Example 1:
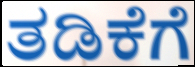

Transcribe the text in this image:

ತಡಿಕೆಗೆ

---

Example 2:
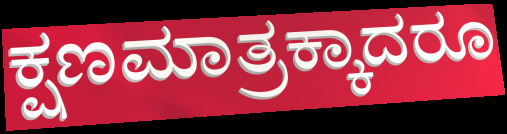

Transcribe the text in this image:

ಕ್ಷಣಮಾತ್ರಕ್ಕಾದರೂ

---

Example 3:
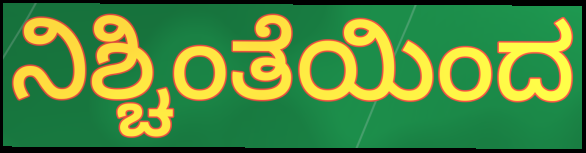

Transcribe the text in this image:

ನಿಶ್ಚಿಂತೆಯಿಂದ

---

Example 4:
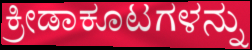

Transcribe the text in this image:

ಕ್ರೀಡಾಕೂಟಗಳನ್ನು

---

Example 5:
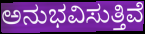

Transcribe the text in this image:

ಅನುಭವಿಸುತ್ತಿವೆ